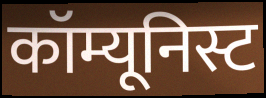
कॉम्यूनिस्ट